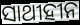
ସାଥୀହୀନ